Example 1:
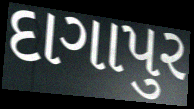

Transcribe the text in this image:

દાગાપુર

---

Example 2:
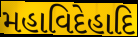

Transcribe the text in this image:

મહાવિદેહાદિ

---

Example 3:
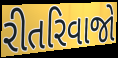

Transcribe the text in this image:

રીતરિવાજો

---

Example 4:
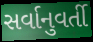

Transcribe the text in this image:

સર્વાનુવર્તી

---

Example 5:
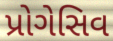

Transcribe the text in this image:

પ્રોગેસિવ